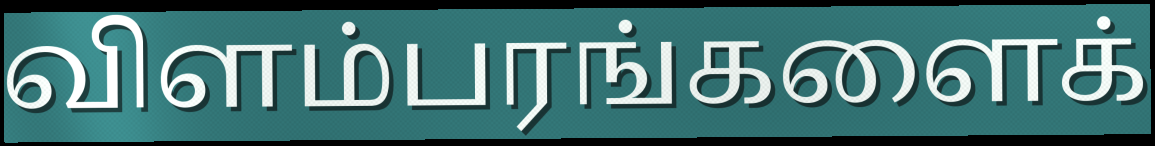
விளம்பரங்களைக்